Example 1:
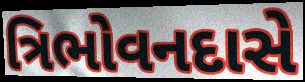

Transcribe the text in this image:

ત્રિભોવનદાસે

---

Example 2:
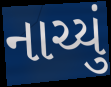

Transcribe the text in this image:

નાચ્યું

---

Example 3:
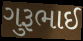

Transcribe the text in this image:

ગુરૂભાઈ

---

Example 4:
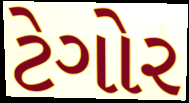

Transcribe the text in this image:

ટેગોર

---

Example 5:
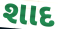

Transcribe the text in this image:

શાદ